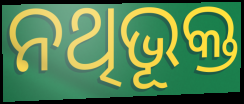
ନଥିଭୂକ୍ତ